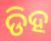
ଡିହ